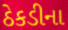
ઠેકડીના